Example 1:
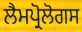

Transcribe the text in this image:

ਲੈਮਪ੍ਰੋਲੋਗਸ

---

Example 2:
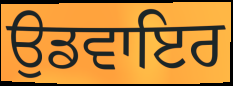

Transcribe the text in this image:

ਉਡਵਾਇਰ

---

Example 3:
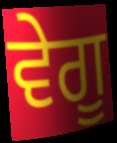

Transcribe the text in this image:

ਵੇਗੂ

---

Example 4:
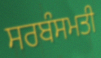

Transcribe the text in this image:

ਸਰਬੰਸਮਤੀ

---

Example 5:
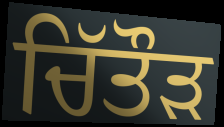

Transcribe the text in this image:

ਚਿੱਤੌੜ